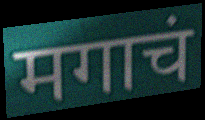
मगाचं